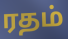
ரதம்